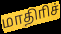
மாதிரிச்